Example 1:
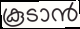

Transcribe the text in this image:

കൂടാൻ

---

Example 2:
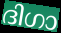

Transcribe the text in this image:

ദിഗാ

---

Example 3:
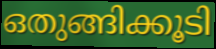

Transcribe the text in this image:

ഒതുങ്ങിക്കൂടി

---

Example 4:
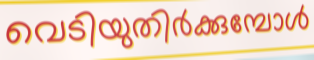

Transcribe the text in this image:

വെടിയുതിർക്കുമ്പോൾ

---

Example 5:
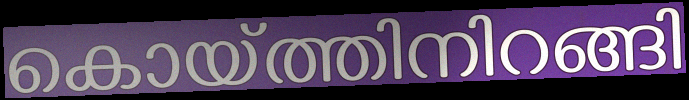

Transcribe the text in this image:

കൊയ്ത്തിനിറങ്ങി